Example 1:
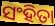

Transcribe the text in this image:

ସଂହିତା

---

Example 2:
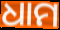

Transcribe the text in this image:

ଧାମ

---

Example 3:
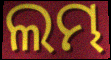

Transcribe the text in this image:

ଲମ୍ଭ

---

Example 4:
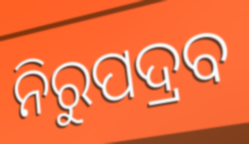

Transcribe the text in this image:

ନିରୁପଦ୍ରବ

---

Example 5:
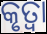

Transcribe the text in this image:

କୃତ୍ଵା